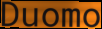
Duomo